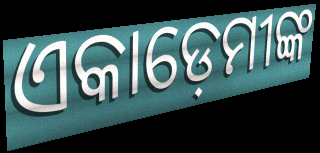
ଏକାଡ଼େମୀଙ୍କ